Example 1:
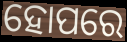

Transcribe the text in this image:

ହୋପରେ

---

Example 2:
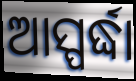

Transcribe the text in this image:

ଆସ୍ପର୍ଦ୍ଧା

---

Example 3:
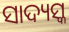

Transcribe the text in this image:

ସାଦ୍ୟସ୍କ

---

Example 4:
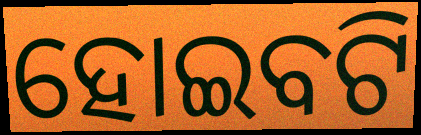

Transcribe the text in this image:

ହୋଇବଟି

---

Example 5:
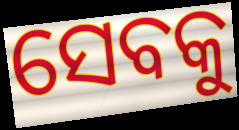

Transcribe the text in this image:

ସେବକୁ